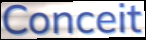
Conceit